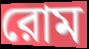
রোম